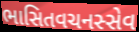
ભાસિતવચનસ્સેવ